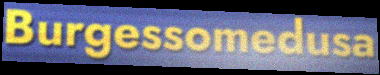
Burgessomedusa